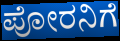
ಪೋರನಿಗೆ